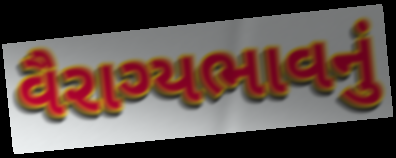
વૈરાગ્યભાવનું